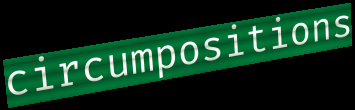
circumpositions